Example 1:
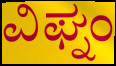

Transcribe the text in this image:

ವಿಘ್ನಂ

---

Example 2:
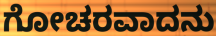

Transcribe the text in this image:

ಗೋಚರವಾದನು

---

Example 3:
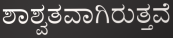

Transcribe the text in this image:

ಶಾಶ್ವತವಾಗಿರುತ್ತವೆ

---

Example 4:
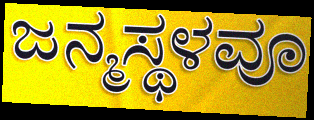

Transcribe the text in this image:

ಜನ್ಮಸ್ಥಳವೂ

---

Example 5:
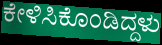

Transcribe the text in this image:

ಕೇಳಿಸಿಕೊಂಡಿದ್ದಳು